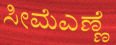
ಸೀಮೆಎಣ್ಣೆ